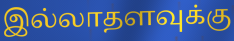
இல்லாதளவுக்கு